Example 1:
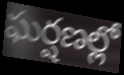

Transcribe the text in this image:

ఘర్షణల్లో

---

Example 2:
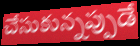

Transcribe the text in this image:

చేసుకున్నప్పుడే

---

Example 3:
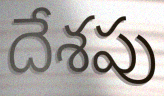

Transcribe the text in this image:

దేశపు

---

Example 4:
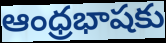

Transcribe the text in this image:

ఆంధ్రభాషకు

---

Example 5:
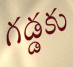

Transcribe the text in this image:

గడ్డకు